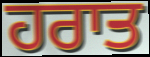
ਹਰਾਤ